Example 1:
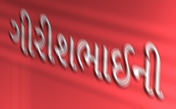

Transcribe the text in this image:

ગીરીશભાઈની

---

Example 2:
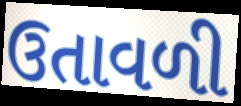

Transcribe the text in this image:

ઉતાવળી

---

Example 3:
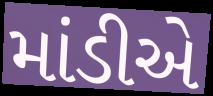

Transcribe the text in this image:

માંડીએ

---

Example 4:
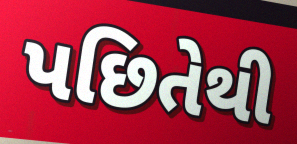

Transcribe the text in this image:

પછિતેથી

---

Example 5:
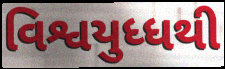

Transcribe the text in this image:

વિશ્વયુધ્ધથી